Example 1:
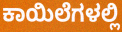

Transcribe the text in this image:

ಕಾಯಿಲೆಗಳಲ್ಲಿ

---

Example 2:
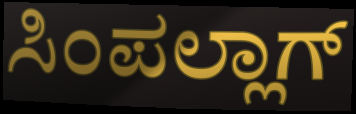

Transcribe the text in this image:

ಸಿಂಪಲ್ಲಾಗ್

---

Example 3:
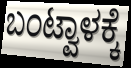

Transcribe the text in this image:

ಬಂಟ್ವಾಳಕ್ಕೆ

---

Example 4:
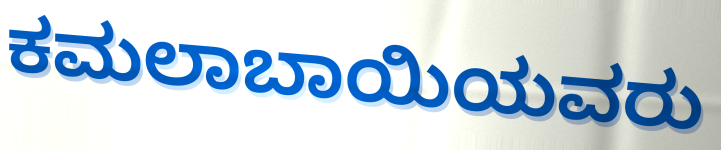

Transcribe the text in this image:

ಕಮಲಾಬಾಯಿಯವರು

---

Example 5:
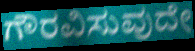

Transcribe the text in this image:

ಗೌರವಿಸುವುದೇ